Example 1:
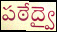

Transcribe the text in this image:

పఠేద్వై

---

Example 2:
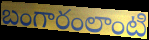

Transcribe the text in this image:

బంగారంలాంటి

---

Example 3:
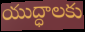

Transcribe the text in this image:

యుద్ధాలకు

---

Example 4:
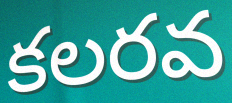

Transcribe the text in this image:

కలరవ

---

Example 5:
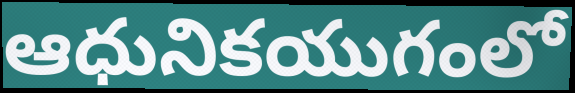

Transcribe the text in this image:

ఆధునికయుగంలో